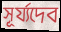
সূর্য্যদেব